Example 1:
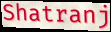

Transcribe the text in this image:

Shatranj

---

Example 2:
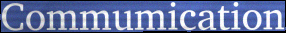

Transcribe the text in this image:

Commumication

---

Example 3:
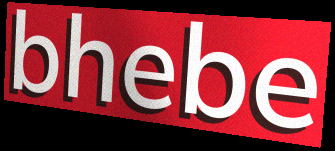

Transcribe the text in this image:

bhebe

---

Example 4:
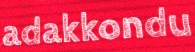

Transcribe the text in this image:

adakkondu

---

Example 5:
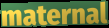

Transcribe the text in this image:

maternal